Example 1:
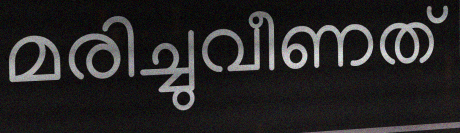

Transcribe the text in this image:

മരിച്ചുവീണത്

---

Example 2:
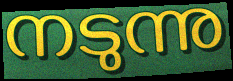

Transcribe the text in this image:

നടുന്നു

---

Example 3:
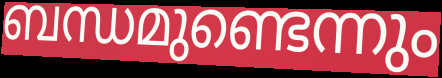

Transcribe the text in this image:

ബന്ധമുണ്ടെന്നും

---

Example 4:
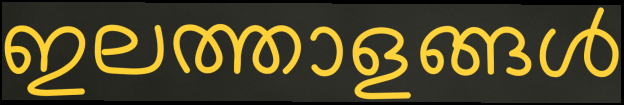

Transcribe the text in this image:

ഇലത്താളങ്ങൾ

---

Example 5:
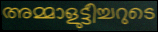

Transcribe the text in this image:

അമ്മാളുട്ടീച്ചറുടെ